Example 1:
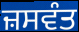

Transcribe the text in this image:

ਜ਼ਸਵੰਤ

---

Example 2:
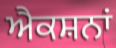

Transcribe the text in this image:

ਐਕਸ਼ਨਾਂ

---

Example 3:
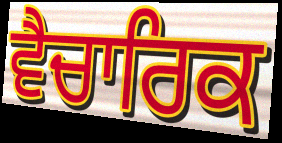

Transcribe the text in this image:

ਵੈਚਾਰਿਕ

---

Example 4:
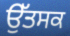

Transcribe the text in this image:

ਉੱਤਸਕ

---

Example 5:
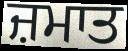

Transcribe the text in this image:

ਜ਼ਮਾਤ